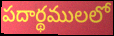
పదార్థములలో